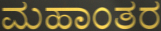
ಮಹಾಂತರ